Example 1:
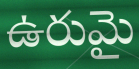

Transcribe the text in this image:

ఉరుమై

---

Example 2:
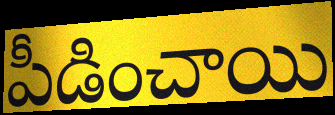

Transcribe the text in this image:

పీడించాయి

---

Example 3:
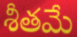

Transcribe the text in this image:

శీతమే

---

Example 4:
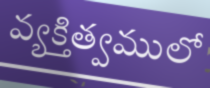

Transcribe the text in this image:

వ్యక్తిత్వములో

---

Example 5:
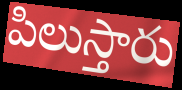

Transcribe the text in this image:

పిలుస్తారు